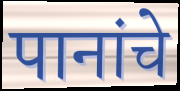
पानांचे